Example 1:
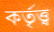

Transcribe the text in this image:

কর্তৃত্ত্ব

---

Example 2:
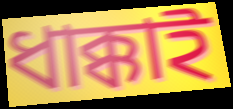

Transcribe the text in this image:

ধাক্কাই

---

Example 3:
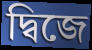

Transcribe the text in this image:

দ্বিজে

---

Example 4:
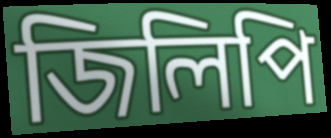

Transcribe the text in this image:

জিলিপি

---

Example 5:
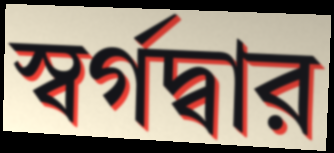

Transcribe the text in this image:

স্বর্গদ্বার